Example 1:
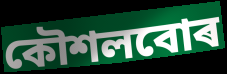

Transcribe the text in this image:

কৌশলবোৰ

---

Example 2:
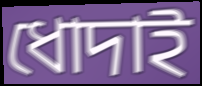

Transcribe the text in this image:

ধোদাই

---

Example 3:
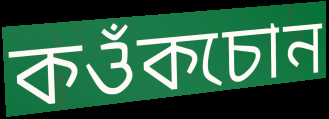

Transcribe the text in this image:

কওঁকচোন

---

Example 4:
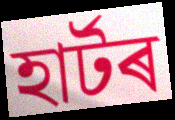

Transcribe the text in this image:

হাৰ্টৰ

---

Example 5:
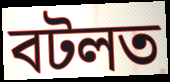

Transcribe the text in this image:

বটলত